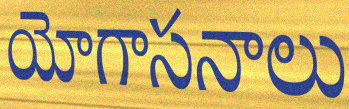
యోగాసనాలు